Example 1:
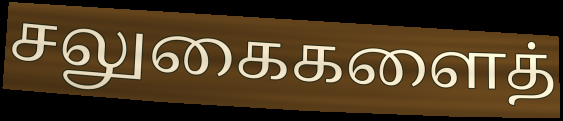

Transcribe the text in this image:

சலுகைகளைத்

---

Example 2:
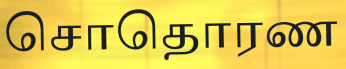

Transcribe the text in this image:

சொதொரண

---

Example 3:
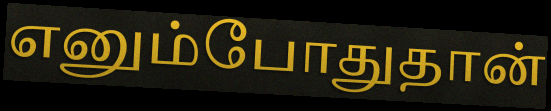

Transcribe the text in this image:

எனும்போதுதான்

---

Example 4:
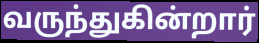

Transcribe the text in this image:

வருந்துகின்றார்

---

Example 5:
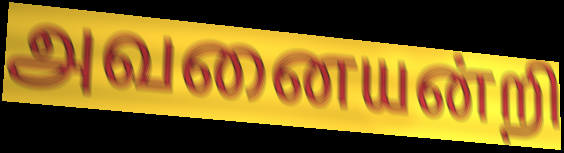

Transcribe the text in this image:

அவனையன்றி